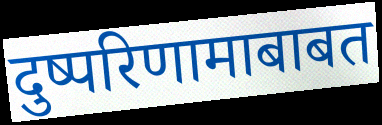
दुष्परिणामाबाबत